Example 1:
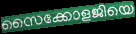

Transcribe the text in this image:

സൈക്കോളജിയെ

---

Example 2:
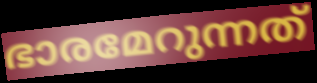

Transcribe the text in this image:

ഭാരമേറുന്നത്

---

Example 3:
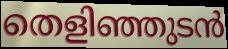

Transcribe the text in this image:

തെളിഞ്ഞുടൻ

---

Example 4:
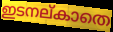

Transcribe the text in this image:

ഇടനല്കാതെ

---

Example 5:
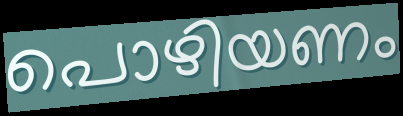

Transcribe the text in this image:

പൊഴിയണം